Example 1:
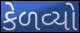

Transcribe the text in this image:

કેળવ્યો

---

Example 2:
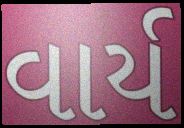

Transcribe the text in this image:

વાર્ય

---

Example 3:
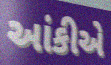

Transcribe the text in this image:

આંકીએ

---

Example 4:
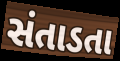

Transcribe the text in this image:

સંતાડતા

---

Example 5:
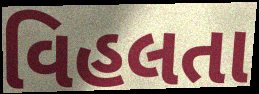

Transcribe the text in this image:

વિહલતા